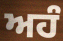
ਅਹੰ